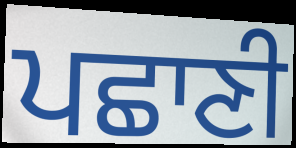
ਪਛਾਣੀ